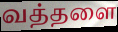
வத்தளை